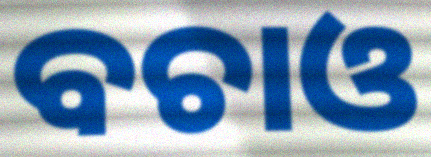
ବଚାଓ